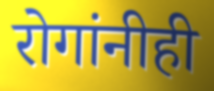
रोगांनीही